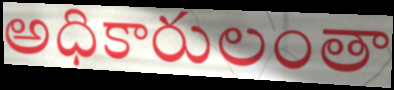
అధికారులంతా